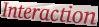
Interaction